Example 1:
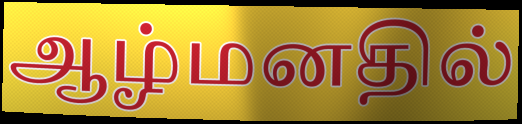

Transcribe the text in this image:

ஆழ்மனதில்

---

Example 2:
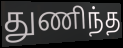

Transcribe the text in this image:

துணிந்த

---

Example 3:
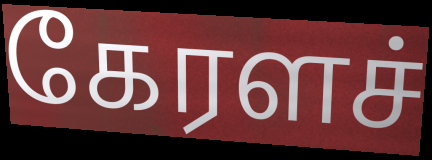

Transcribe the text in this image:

கேரளச்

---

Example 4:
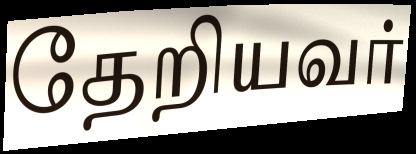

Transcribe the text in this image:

தேறியவர்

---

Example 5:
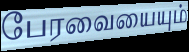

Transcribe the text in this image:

பேரவையையும்